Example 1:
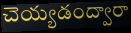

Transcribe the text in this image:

చెయ్యడంద్వారా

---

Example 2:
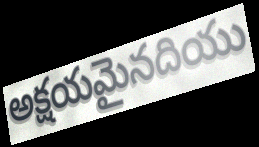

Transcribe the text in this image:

అక్షయమైనదియు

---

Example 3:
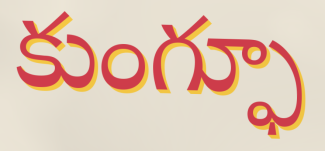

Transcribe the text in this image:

కుంగ్ఫూ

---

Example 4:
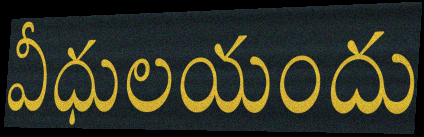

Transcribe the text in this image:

వీధులయందు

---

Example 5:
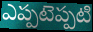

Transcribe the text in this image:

ఎప్పటెప్పటి